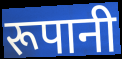
रूपानी